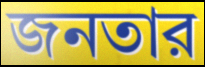
জনতার